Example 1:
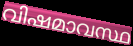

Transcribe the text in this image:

വിഷമാവസ്ഥ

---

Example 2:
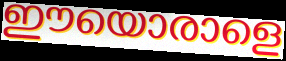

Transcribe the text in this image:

ഈയൊരാളെ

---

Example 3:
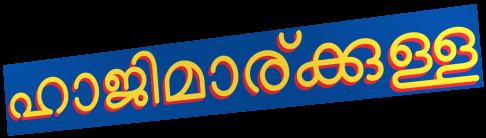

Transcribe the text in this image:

ഹാജിമാര്ക്കുള്ള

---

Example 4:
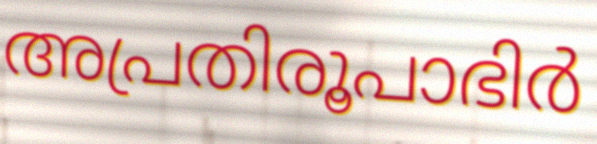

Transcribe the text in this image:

അപ്രതിരൂപാഭിർ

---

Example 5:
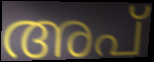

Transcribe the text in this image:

അപ്